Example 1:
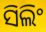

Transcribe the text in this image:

ସିଲିଂ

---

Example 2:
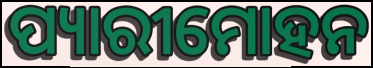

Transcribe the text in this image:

ପ୍ୟାରୀମୋହନ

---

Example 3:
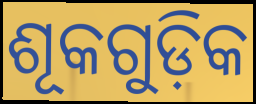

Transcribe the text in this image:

ଶୂକଗୁଡ଼ିକ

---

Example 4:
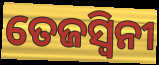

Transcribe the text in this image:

ତେଜସ୍ଵିନୀ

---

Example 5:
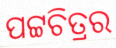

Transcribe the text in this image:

ପଟ୍ଟଚିତ୍ରର